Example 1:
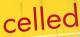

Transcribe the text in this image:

celled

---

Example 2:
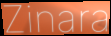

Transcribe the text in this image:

Zinara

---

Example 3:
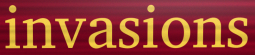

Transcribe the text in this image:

invasions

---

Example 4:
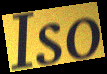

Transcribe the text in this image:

Iso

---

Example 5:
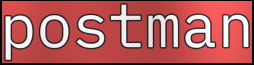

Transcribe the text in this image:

postman